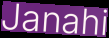
Janahi